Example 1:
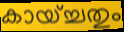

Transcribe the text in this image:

കായ്ച്ചതും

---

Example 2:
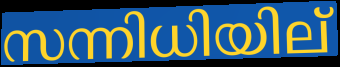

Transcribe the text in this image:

സന്നിധിയില്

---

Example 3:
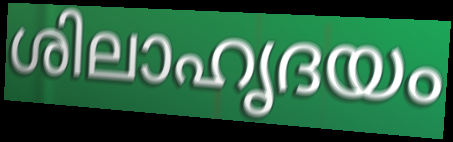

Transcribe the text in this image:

ശിലാഹൃദയം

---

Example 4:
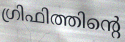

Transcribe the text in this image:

ഗ്രിഫിത്തിന്റെ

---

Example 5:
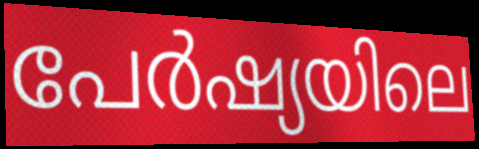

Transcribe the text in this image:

പേർഷ്യയിലെ